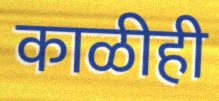
काळीही